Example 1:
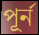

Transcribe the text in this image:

পূর্ন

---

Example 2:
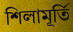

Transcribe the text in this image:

শিলামূর্তি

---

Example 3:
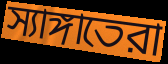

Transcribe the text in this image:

স্যাঙ্গাতেরা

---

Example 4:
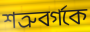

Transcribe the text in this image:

শত্রুবর্গকে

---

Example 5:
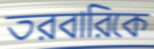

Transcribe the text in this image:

তরবারিকে